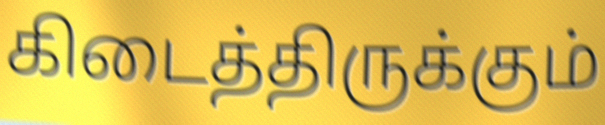
கிடைத்திருக்கும்